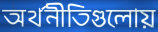
অর্থনীতিগুলোয়